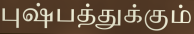
புஷ்பத்துக்கும்